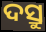
ଦସ୍ରୁ